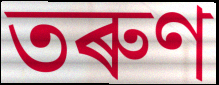
তৰুণ